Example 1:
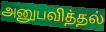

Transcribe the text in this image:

அனுபவித்தல்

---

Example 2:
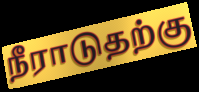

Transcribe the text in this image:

நீராடுதற்கு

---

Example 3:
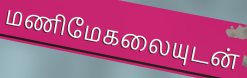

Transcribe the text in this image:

மணிமேகலையுடன்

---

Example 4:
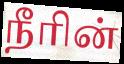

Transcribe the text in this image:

நீரின்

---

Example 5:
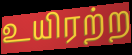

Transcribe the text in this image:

உயிரற்ற